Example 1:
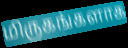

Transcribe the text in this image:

மிருகங்களாக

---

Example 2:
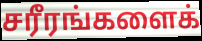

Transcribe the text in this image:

சரீரங்களைக்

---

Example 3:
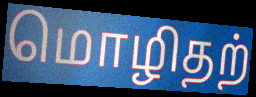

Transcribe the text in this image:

மொழிதற்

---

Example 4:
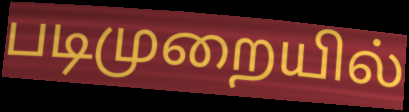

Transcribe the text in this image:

படிமுறையில்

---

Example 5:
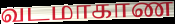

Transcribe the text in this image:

வடமாகாண